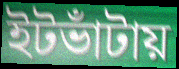
ইটভাঁটায়